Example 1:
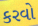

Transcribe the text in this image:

કરવો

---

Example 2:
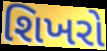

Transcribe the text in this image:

શિખરો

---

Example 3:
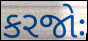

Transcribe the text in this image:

કરજોઃ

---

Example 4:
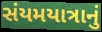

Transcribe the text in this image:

સંયમયાત્રાનું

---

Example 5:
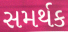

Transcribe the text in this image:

સમર્થક